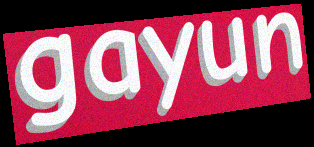
gayun